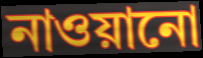
নাওয়ানো